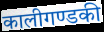
कालीगण्डकी